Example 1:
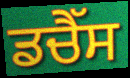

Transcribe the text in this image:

ਡਚੈੱਸ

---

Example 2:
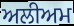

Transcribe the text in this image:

ਅਲੀਅਮ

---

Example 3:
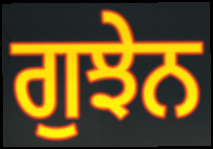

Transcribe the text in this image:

ਗੁਝੇਨ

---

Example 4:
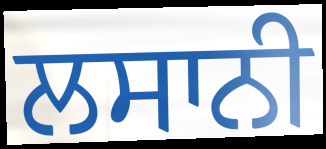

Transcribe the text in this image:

ਲਸਾਨੀ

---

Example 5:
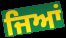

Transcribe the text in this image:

ਜਿਆਂ